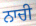
ਨਾਚੀ